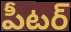
పీటర్